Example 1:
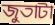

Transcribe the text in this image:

জুতাটা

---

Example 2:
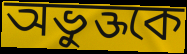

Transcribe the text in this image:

অভুক্তকে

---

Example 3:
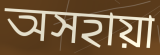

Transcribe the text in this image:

অসহায়া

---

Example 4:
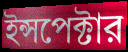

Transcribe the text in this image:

ইন্সপেক্টার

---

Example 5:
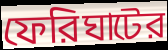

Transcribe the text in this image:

ফেরিঘাটের